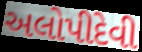
અલોપીદેવી